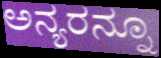
ಅನ್ಯರನ್ನೂ